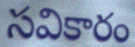
సవికారం